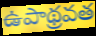
ఉపాథ్రవత